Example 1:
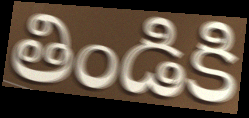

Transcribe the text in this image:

తిండికి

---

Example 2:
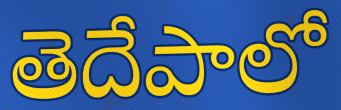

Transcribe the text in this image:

తెదేపాలో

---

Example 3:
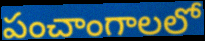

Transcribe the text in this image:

పంచాంగాలలో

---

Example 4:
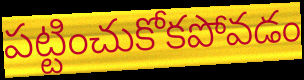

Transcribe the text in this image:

పట్టించుకోకపోవడం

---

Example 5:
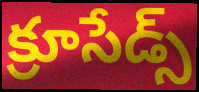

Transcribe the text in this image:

క్రూసేడ్స్